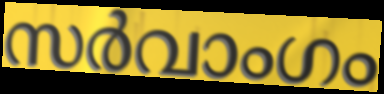
സർവാംഗം